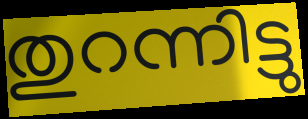
തുറന്നിട്ടു